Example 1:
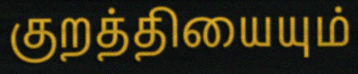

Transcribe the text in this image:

குறத்தியையும்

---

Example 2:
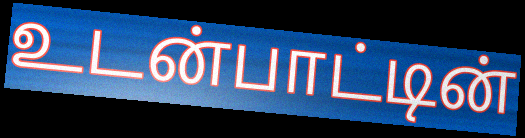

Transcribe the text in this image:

உடன்பாட்டின்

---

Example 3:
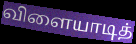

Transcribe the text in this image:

விளையாடித்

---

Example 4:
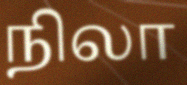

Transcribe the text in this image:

நிலா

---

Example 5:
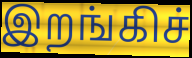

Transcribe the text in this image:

இறங்கிச்